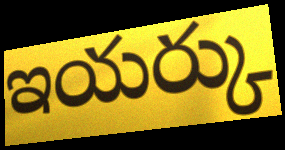
ఇయర్కు